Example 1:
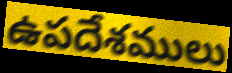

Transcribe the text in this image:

ఉపదేశములు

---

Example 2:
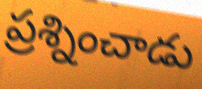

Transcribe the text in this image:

ప్రశ్నించాడు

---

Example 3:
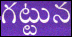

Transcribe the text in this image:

గట్టున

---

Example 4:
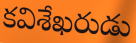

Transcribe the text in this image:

కవిశేఖరుడు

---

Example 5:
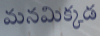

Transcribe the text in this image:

మనమిక్కడ